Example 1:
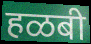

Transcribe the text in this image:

हळबी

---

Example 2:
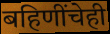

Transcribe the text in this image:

बहिणींचेही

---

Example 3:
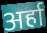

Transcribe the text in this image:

अर्हा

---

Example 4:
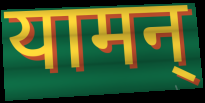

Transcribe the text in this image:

यामन्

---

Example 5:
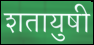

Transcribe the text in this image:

शतायुषी